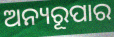
ଅନ୍ୟରୂପାର